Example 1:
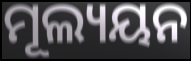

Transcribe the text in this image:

ମୂଲ୍ୟୟନ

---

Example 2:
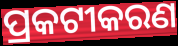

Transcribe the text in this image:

ପ୍ରକଟୀକରଣ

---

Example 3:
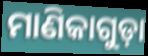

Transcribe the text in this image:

ମାଣିକାଗୁଡ଼ା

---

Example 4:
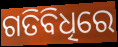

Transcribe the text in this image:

ଗତିବିଧିରେ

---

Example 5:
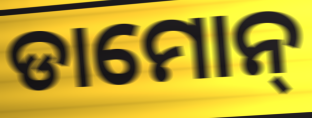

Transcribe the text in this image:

ଡାମୋନ୍